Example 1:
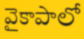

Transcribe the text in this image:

వైకాపాలో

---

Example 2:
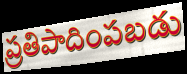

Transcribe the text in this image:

ప్రతిపాదింపబడు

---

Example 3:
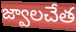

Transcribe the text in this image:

జ్వాలచేత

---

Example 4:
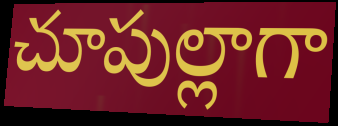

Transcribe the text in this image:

చూపుల్లాగా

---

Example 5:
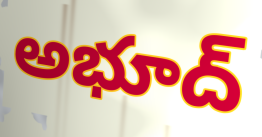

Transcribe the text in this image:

అభూద్